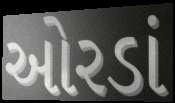
ઓરડાં